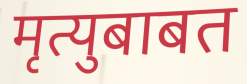
मृत्युबाबत